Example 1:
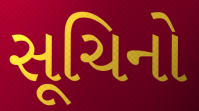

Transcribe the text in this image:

સૂચિનો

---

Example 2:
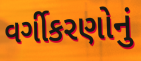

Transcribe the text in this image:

વર્ગીકરણોનું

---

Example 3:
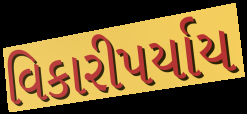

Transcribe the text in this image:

વિકારીપર્યાય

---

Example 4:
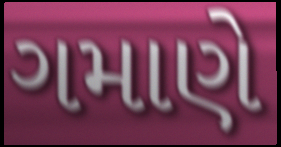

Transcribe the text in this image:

ગમાણે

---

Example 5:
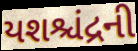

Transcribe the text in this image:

યશશ્ચંદ્રની